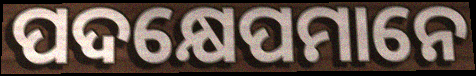
ପଦକ୍ଷେପମାନେ